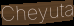
Cheyuta